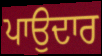
ਪਾਉਦਾਰ